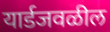
यार्डजवळील